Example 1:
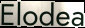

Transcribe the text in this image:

Elodea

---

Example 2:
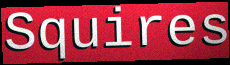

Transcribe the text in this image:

Squires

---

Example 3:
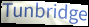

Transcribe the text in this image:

Tunbridge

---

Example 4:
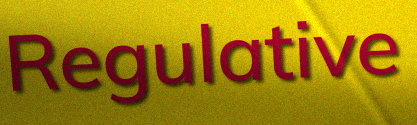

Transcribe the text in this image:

Regulative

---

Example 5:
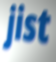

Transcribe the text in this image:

jist